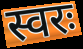
स्वरः